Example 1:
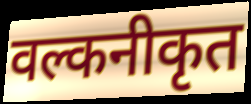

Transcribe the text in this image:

वल्कनीकृत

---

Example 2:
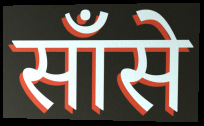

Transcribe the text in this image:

साँसे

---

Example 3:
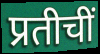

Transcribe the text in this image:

प्रतीचीं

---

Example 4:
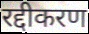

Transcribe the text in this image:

रद्दीकरण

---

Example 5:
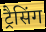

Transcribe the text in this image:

ट्रैसिंग